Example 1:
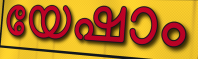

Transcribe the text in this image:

യേഷാം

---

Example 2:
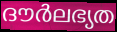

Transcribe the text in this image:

ദൗർലഭ്യത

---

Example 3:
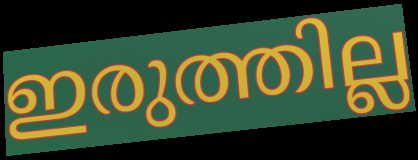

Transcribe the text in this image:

ഇരുത്തില്ല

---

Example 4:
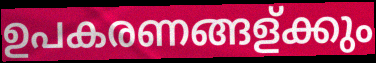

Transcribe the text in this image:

ഉപകരണങ്ങള്ക്കും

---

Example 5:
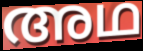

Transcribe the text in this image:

അഥ